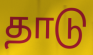
தாடு